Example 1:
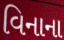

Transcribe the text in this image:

વિનાના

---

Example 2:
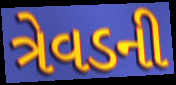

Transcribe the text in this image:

ત્રેવડની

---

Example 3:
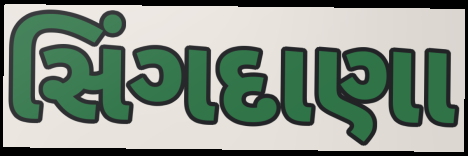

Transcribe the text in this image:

સિંગદાણા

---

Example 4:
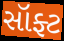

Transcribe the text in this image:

સૉફ્ટ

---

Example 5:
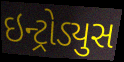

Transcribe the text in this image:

ઇન્ટ્રોડ્યુસ